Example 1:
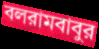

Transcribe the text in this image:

বলরামবাবুর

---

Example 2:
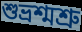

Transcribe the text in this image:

শুভ্রশ্মশ্রু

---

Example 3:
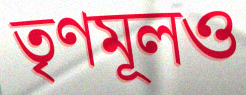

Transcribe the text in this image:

তৃণমূলও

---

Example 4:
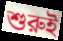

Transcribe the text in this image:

শুরুই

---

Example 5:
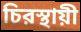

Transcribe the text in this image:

চিরস্থায়ী